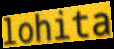
lohita